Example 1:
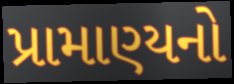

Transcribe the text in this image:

પ્રામાણ્યનો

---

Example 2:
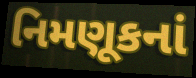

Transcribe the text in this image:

નિમણૂકનાં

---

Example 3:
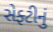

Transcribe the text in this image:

સેફ્ટીનું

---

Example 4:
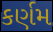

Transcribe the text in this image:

કર્ણમ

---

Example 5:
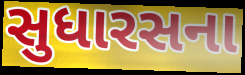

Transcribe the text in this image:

સુધારસના